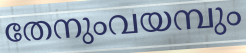
തേനുംവയമ്പും